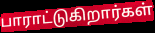
பாராட்டுகிறார்கள்